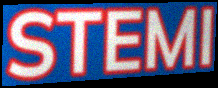
STEMI